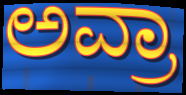
ಅವ್ರಾ